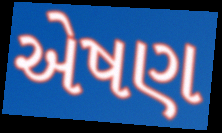
એષણ